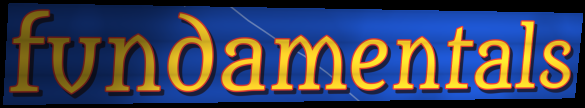
fundamentals